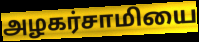
அழகர்சாமியை